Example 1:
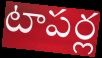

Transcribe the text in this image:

టాపర్ల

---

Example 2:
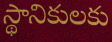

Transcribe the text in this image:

స్థానికులకు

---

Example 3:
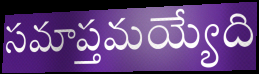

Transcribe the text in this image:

సమాప్తమయ్యేది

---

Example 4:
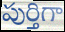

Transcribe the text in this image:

పుర్తిగా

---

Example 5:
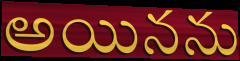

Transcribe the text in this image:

అయినను